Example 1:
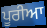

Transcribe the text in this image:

ਪੂਰੀਆ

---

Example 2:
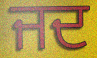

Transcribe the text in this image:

ਜਦ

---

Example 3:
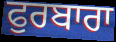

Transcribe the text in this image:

ਫੁਰਬਾਰਾ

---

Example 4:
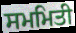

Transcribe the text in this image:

ਸਮਮਿਤੀ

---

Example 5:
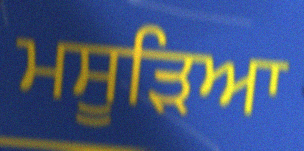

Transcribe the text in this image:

ਮਸੂੜਿਆ